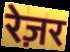
रेज़र